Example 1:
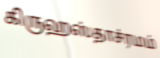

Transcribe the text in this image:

கிருஹஸ்தாச்ரமம்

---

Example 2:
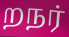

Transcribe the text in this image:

றநர்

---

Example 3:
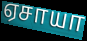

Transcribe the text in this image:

ஏசாயா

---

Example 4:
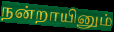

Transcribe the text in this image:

நன்றாயினும்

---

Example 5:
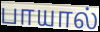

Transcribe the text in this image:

பாயால்